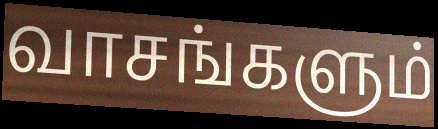
வாசங்களும்